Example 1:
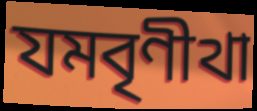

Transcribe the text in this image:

যমবৃণীথা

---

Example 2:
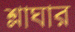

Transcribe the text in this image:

শ্লাঘার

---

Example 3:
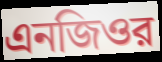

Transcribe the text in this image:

এনজিওর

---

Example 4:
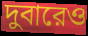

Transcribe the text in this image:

দুবারেও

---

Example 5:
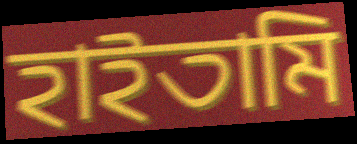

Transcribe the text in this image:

হাইতামি